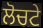
ਲੋਚਟੇ